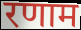
रणाम